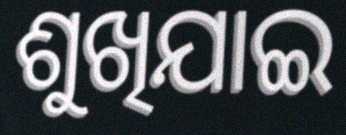
ଶୁଖିଯାଇ